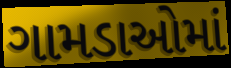
ગામડાઓમાં